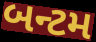
બન્ટમ